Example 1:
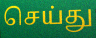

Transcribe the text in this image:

செய்து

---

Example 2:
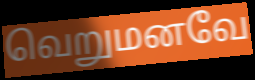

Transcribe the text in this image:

வெறுமனவே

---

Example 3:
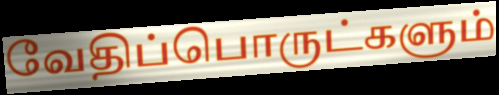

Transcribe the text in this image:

வேதிப்பொருட்களும்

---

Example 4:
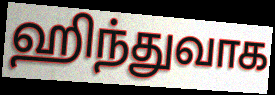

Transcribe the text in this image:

ஹிந்துவாக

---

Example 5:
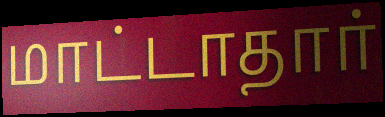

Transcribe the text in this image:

மாட்டாதார்